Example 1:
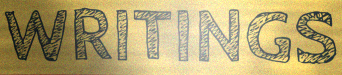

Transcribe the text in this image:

WRITINGS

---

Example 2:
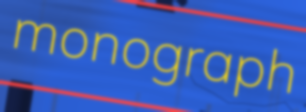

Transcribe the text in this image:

monograph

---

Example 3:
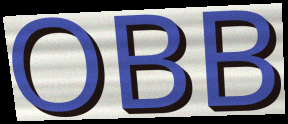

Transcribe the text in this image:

OBB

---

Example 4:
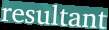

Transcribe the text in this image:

resultant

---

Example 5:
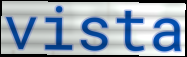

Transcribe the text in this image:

vista